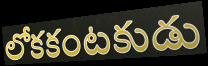
లోకకంటకుడు